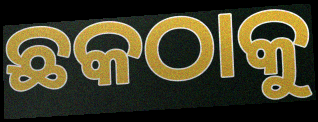
ଛକଠାକୁ